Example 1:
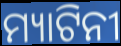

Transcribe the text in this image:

ମ୍ୟାଟିନୀ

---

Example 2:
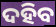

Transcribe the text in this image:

ଦହିବ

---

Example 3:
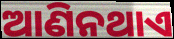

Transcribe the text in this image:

ଆଣିନଥାଏ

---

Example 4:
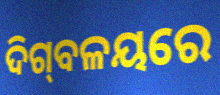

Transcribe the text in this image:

ଦିଗ୍‍ବଳୟରେ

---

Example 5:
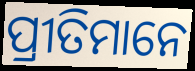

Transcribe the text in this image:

ପ୍ରୀତିମାନେ